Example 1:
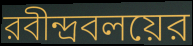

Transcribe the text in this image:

রবীন্দ্রবলয়ের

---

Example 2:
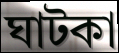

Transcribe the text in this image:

ঘাটকা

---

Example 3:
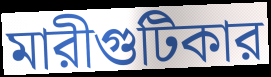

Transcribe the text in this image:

মারীগুটিকার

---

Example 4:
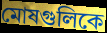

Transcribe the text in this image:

মোষগুলিকে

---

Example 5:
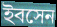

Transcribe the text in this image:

ইবসেন